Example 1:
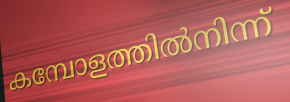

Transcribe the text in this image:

കമ്പോളത്തിൽനിന്ന്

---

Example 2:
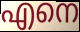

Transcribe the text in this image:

എനെ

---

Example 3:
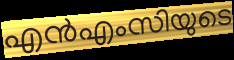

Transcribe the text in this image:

എൻഎംസിയുടെ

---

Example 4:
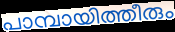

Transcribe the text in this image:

പാമ്പായിത്തീരും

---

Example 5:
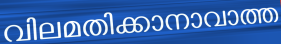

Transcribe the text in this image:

വിലമതിക്കാനാവാത്ത